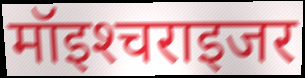
मॉइश्‍चराइजर